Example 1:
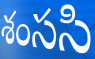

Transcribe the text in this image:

శంససి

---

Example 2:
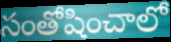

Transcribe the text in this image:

సంతోషించాలో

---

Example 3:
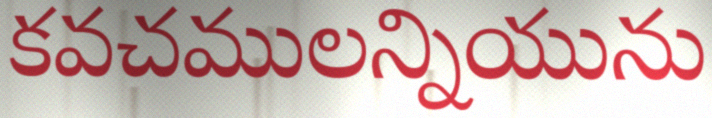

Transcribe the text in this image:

కవచములన్నియును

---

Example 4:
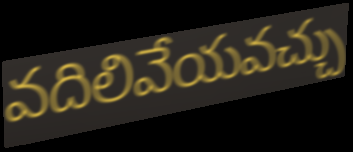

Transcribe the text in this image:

వదిలివేయవచ్చు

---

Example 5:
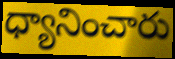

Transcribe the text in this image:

ధ్యానించారు